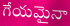
గేయమైనా